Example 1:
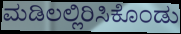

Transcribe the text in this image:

ಮಡಿಲಲ್ಲಿರಿಸಿಕೊಂಡು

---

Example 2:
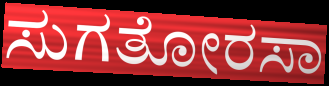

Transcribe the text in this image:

ಸುಗತೋರಸಾ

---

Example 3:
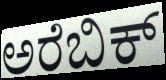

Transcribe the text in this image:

ಅರೆಬಿಕ್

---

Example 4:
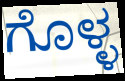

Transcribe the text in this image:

ಗೊಳ್ಳ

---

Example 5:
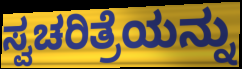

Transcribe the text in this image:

ಸ್ವಚರಿತ್ರೆಯನ್ನು